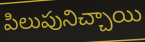
పిలుపునిచ్చాయి